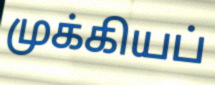
முக்கியப்